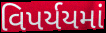
વિપર્યયમાં